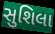
સુશિલા